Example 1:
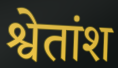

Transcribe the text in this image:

श्वेतांश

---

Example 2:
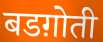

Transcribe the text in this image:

बडग़ोती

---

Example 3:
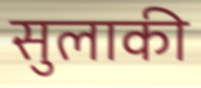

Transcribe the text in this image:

सुलाकी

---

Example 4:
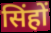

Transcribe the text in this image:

सिंहों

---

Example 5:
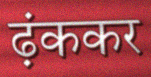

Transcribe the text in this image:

ढ़ंककर